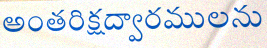
అంతరిక్షద్వారములను